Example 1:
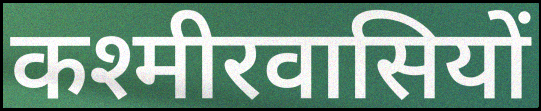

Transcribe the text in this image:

कश्मीरवासियों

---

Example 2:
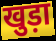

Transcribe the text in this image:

खुड़ा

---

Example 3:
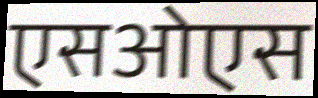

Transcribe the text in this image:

एसओएस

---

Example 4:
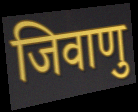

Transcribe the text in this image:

जिवाणु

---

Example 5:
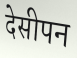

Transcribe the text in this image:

देसीपन